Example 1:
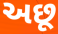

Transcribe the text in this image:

અછૂ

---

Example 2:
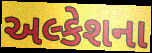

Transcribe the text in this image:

અલ્કેશના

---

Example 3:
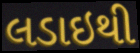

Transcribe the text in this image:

લડાઇથી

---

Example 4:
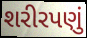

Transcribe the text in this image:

શરીરપણું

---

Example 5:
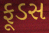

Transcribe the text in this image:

ફૂડસ